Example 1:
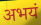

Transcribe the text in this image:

अभयं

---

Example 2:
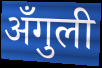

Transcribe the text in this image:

अँगुली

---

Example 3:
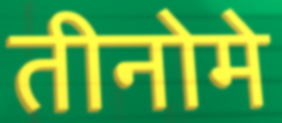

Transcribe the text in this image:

तीनोमे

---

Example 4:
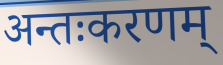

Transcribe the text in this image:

अन्तःकरणम्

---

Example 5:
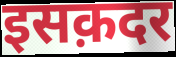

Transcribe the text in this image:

इसक़दर